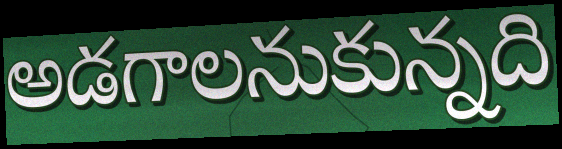
అడగాలనుకున్నది